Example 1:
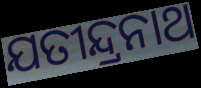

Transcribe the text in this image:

ଯତୀନ୍ଦ୍ରନାଥ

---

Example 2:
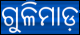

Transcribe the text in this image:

ଗୁଳିମାଡ଼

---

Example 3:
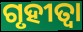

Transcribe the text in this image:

ଗୃହୀତ୍ଵା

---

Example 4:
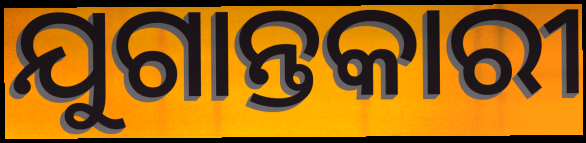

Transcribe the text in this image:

ଯୁଗାନ୍ତକାରୀ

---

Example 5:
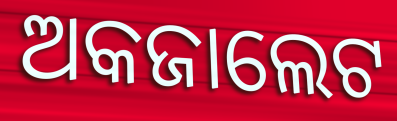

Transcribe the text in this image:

ଅକଜାଲେଟ